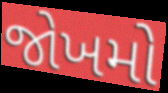
જોખમો